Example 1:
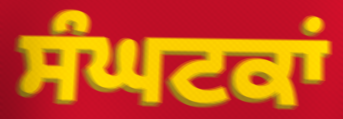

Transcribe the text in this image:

ਸੰਘਟਕਾਂ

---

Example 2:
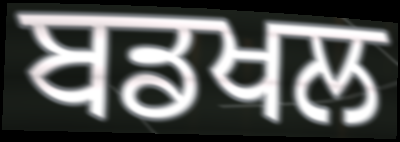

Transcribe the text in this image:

ਬਡਖਲ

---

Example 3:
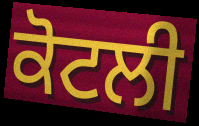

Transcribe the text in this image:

ਕੋਟਲੀ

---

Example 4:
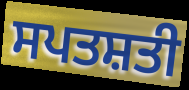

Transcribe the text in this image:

ਸਪਤਸ਼ਤੀ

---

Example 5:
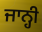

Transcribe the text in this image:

ਜਾਨ੍ਹੀ